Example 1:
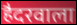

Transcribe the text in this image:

हैदरवाला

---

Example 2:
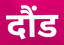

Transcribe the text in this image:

दौंड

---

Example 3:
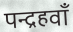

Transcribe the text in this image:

पन्द्रहवाँ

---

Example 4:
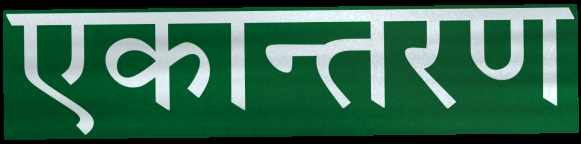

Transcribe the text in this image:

एकान्तरण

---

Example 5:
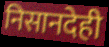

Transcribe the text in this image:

निसानदेही